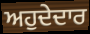
ਅਹੁਦੇਦਾਰ